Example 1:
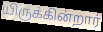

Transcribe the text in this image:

யிருக்கின்றார்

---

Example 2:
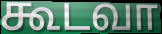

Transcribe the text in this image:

கூடவா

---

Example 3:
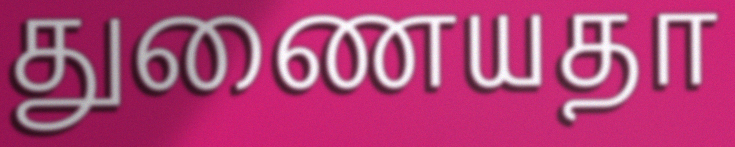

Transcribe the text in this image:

துணையதா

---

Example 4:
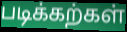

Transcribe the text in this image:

படிக்கற்கள்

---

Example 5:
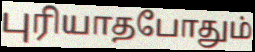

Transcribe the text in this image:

புரியாதபோதும்